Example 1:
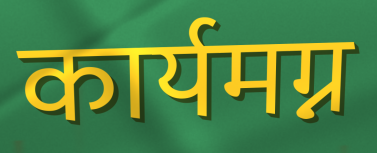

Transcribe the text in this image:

कार्यमग्न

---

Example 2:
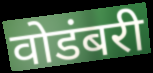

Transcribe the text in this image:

वोडंबरी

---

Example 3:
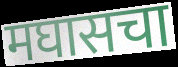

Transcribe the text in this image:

मघासचा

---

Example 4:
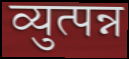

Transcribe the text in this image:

व्युत्पन्न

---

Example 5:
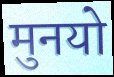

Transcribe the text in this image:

मुनयो